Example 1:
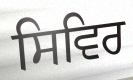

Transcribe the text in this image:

ਸਿਵਿਰ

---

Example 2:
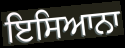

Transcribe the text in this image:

ਇਸਿਆਨਾ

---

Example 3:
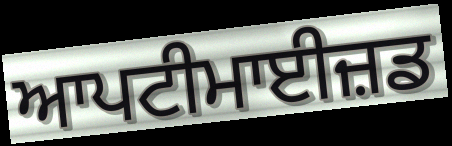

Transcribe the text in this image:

ਆਪਟੀਮਾਈਜ਼ਡ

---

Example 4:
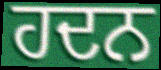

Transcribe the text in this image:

ਹਦਨ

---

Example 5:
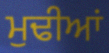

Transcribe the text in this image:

ਮੁਢੀਆਂ